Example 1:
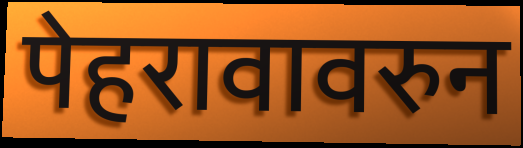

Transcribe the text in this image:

पेहरावावरुन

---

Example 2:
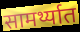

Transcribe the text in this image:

सामर्थ्यात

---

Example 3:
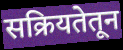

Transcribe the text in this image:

सक्रियतेतून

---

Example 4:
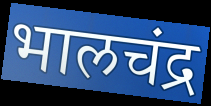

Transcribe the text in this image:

भालचंद्र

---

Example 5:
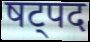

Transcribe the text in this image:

षट्पद